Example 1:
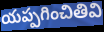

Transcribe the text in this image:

యప్పగించితివి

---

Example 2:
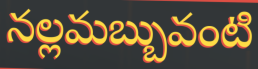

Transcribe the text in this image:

నల్లమబ్బువంటి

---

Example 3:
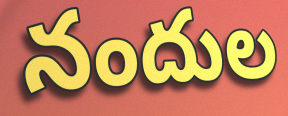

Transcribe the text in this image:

నందుల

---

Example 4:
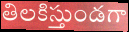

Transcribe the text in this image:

తిలకిస్తుండగా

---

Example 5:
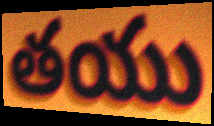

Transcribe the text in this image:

తయు